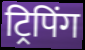
ट्रिपिंग